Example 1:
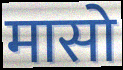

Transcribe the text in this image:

मासो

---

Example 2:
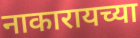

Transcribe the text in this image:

नाकारायच्या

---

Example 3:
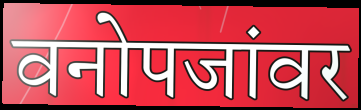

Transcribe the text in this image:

वनोपजांवर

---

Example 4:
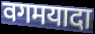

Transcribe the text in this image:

वगमयादा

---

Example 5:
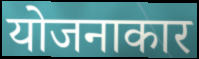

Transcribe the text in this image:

योजनाकार